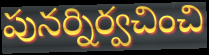
పునర్నిర్వచించి